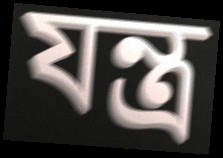
যন্ত্ৰ